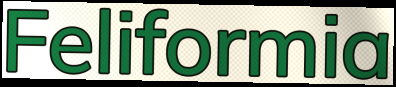
Feliformia